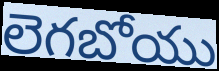
లెగబోయు